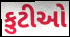
કુટીઓ